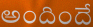
అందిందే